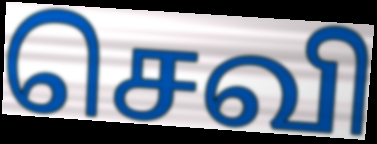
செவி